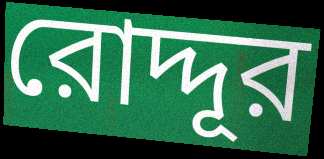
রোদ্দূর